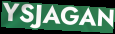
YSJAGAN